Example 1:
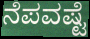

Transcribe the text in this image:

ನೆಪವಷ್ಟೆ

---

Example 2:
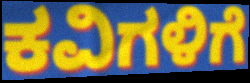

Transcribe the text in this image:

ಕವಿಗಳಿಗೆ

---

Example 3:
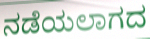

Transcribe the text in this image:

ನಡೆಯಲಾಗದ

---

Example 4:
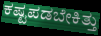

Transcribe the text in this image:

ಕಷ್ಟಪಡಬೇಕಿತ್ತು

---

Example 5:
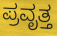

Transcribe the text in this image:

ಪ್ರವೃತ್ತ